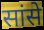
सांसे